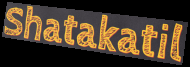
Shatakatil